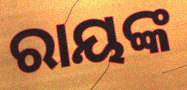
ରାୟଙ୍କ